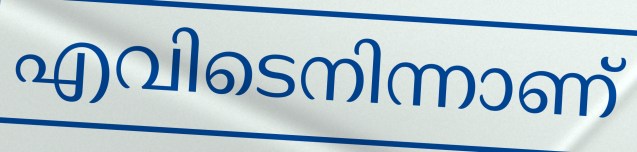
എവിടെനിന്നാണ്